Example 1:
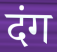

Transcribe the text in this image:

दंग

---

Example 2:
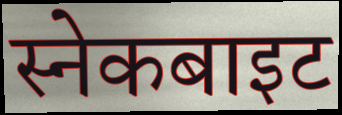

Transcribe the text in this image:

स्नेकबाइट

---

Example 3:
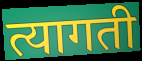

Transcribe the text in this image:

त्यागती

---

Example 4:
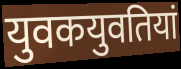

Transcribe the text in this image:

युवकयुवतियां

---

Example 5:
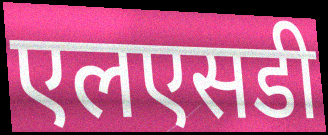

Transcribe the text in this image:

एलएसडी